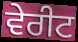
ਵੇਰੀਟ